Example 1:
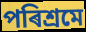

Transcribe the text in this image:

পৰিশ্ৰমে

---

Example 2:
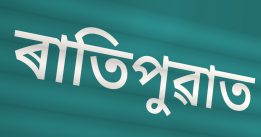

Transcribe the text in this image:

ৰাতিপুৱাত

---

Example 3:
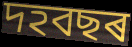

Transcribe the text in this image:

দহবছৰ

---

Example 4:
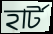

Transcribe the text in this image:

হাৰ্ট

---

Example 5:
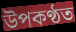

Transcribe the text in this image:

উপকণ্ঠত